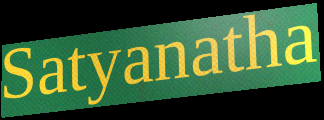
Satyanatha